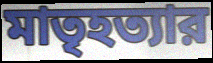
মাতৃহত্যার